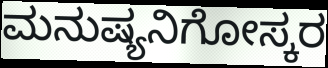
ಮನುಷ್ಯನಿಗೋಸ್ಕರ